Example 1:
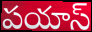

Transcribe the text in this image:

పయాస్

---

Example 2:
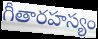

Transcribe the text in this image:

గీతారహస్యం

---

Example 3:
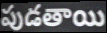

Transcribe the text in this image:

పుడతాయి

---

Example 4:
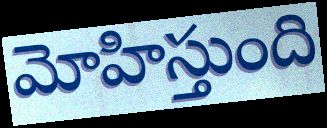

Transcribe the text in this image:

మోహిస్తుంది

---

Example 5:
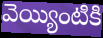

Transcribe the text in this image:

వెయ్యింటికి